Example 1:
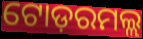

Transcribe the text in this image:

ଟୋଡ଼ରମଲ୍ଲ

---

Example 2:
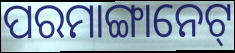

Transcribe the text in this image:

ପରମାଙ୍ଗାନେଟ୍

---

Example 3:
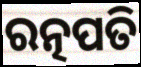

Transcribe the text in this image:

ରତ୍ନପତି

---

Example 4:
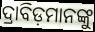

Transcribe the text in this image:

ଦ୍ରାବିଡ଼ମାନଙ୍କୁ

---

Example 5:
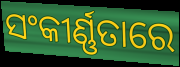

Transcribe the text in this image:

ସଂକୀର୍ଣ୍ଣତାରେ